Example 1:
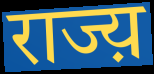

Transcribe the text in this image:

राज्य़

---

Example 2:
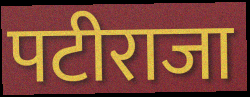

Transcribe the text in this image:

पटीराजा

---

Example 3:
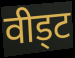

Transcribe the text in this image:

वीड्ट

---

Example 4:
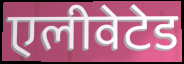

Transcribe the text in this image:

एलीवेटेड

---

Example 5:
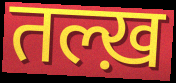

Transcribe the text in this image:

तल्ख़